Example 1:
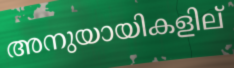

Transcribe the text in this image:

അനുയായികളില്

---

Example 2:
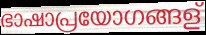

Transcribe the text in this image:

ഭാഷാപ്രയോഗങ്ങള്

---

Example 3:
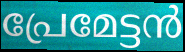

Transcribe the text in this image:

പ്രേമേട്ടൻ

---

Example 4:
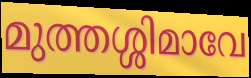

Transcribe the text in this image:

മുത്തശ്ശിമാവേ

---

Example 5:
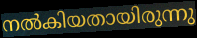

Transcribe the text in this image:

നൽകിയതായിരുന്നു